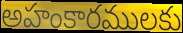
అహంకారములకు